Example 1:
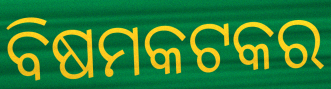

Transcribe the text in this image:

ବିଷମକଟକର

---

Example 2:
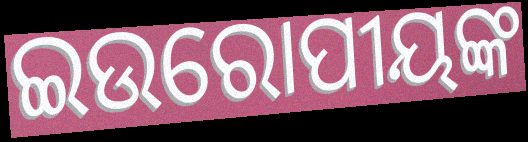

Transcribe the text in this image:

ଇଉରୋପୀୟଙ୍କ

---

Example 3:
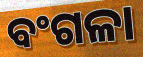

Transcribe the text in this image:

ବଂଗଳା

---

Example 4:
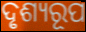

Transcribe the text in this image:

ଦୃଶ୍ୟରୂପ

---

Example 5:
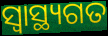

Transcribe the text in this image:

ସ୍ବାସ୍ଥ୍ୟଗତ